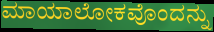
ಮಾಯಾಲೋಕವೊಂದನ್ನು